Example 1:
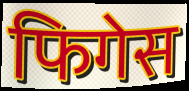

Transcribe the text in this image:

फिगेस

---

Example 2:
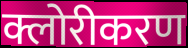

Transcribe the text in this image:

क्लोरीकरण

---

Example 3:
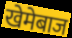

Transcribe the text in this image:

खेमेबाज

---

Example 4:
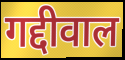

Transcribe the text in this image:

गद्दीवाल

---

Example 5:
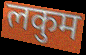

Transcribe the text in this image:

लकुम